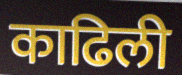
काढिली